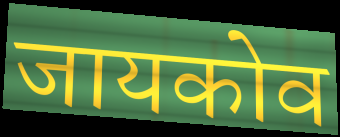
जायकोव